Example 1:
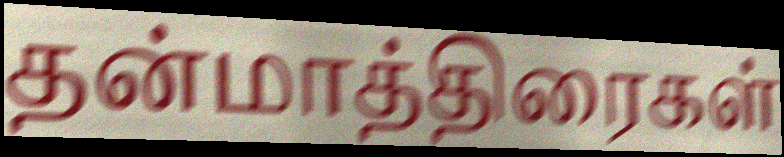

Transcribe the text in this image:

தன்மாத்திரைகள்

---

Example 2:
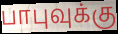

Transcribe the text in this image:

பாபுவுக்கு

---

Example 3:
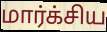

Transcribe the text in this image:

மார்க்சிய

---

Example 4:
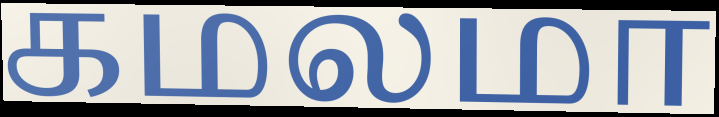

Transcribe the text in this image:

கமலமா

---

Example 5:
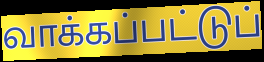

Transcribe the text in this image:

வாக்கப்பட்டுப்